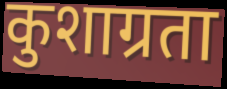
कुशाग्रता